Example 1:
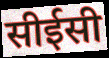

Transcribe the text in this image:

सीईसी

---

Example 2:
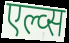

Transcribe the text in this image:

एल्व्स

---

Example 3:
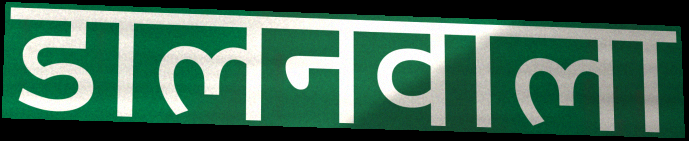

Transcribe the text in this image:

डालनवाला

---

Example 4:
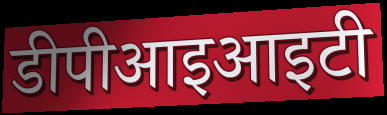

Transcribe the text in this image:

डीपीआइआइटी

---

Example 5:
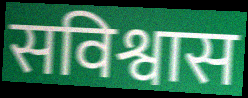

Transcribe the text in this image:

सविश्वास